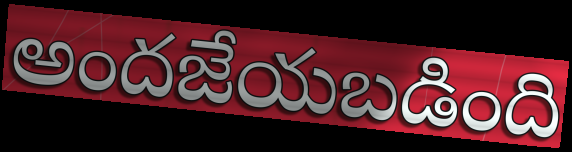
అందజేయబడింది